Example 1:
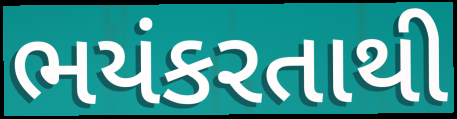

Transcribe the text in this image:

ભયંકરતાથી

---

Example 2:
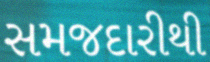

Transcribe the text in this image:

સમજદારીથી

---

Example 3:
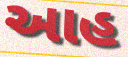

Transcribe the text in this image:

આહ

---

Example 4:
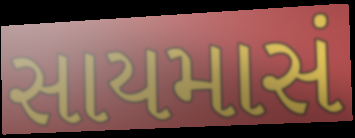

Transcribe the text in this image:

સાયમાસં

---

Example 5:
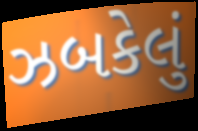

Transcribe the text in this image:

ઝબકેલું